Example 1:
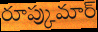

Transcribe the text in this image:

రూప్కుమార్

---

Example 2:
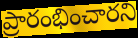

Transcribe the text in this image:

ప్రారంభించారని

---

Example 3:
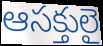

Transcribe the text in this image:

ఆసక్తులై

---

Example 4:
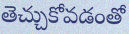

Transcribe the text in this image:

తెచ్చుకోవడంతో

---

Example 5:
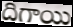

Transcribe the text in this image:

దిగాయి